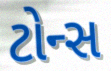
ટોન્સ